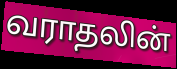
வராதலின்